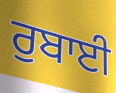
ਰੁਬਾਈ